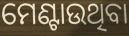
ମେଣ୍ଟାଉଥିବା